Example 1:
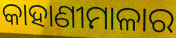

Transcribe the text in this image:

କାହାଣୀମାଳାର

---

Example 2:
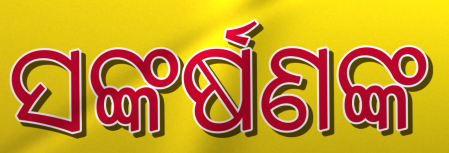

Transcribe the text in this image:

ସଙ୍କର୍ଷଣଙ୍କ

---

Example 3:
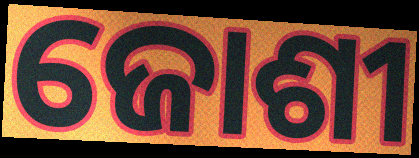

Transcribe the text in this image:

ଜୋଶୀ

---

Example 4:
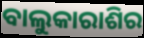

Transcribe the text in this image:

ବାଲୁକାରାଶିର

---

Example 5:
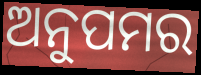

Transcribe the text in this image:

ଅନୁପମର